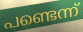
പണ്ടെന്ന്